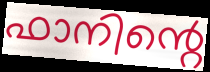
ഫാനിന്റെ